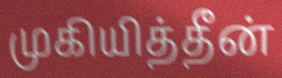
முகியித்தீன்